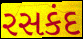
રસકંદ